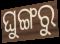
ଘୁଙ୍ଗରୁ